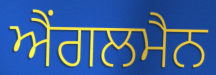
ਐਂਗਲਮੈਨ